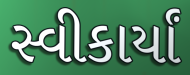
સ્વીકાર્યાં